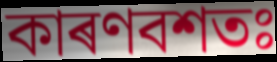
কাৰণবশতঃ